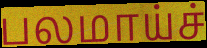
பலமாய்ச்